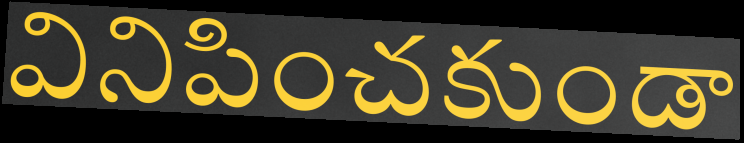
వినిపించకుండా